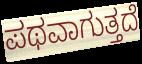
ಪಥವಾಗುತ್ತದೆ